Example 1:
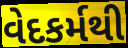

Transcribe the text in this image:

વેદકર્મથી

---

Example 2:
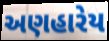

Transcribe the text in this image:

અણહારેય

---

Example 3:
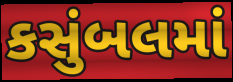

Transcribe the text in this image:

કસુંબલમાં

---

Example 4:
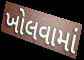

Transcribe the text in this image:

ખોલવામાં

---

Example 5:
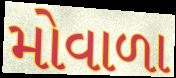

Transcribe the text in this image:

મોવાળા